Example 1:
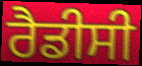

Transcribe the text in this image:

ਰੈਡੀਸੀ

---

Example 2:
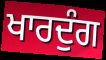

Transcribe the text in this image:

ਖਾਰਦੁੰਗ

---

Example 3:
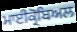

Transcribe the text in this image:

ਮਾਈਕ੍ਰੋਬਿਅਲ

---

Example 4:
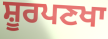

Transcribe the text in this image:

ਸ਼ੂਰਪਣਖਾ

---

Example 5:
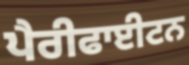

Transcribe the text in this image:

ਪੈਰੀਫਾਈਟਨ